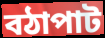
বঠাপাট